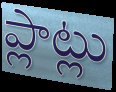
ప్లాట్లు